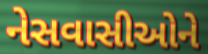
નેસવાસીઓને